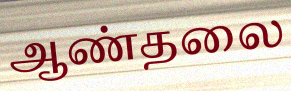
ஆண்தலை